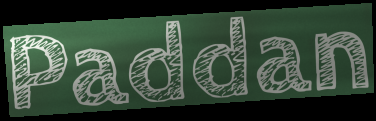
Paddan